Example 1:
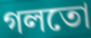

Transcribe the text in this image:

গলতো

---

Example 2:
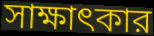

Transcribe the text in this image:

সাক্ষাৎকার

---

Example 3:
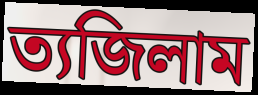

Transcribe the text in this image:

ত্যজিলাম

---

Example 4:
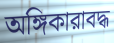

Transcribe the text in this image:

অঙ্গিকারাবদ্ধ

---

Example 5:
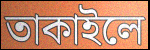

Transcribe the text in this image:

তাকাইলে